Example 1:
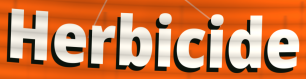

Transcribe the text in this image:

Herbicide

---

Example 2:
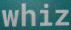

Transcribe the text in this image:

whiz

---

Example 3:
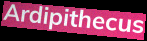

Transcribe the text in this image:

Ardipithecus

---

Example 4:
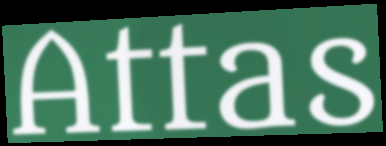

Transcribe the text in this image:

Attas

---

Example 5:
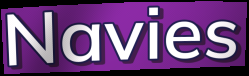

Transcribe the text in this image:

Navies